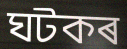
ঘটকৰ